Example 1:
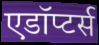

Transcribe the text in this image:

एडॉप्टर्स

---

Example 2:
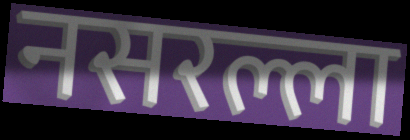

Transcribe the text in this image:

नसरल्ला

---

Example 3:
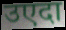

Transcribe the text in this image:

उएदा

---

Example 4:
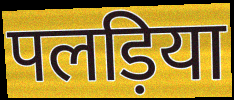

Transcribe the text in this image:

पलड़िया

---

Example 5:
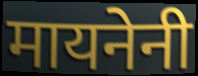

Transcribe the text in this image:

मायनेनी